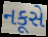
નકૂસે